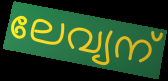
ലേവ്യന്